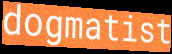
dogmatist